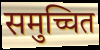
समुच्चित